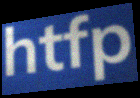
htfp